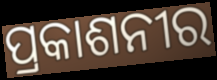
ପ୍ରକାଶନୀର